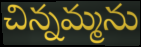
చిన్నమ్మను